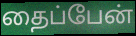
தைப்பேன்